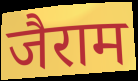
जैराम